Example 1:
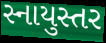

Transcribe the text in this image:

સ્નાયુસ્તર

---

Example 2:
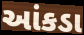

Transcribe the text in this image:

આંકડા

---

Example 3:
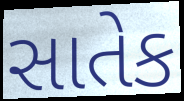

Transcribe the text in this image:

સાતેક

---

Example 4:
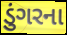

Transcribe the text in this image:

ડુંગરના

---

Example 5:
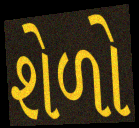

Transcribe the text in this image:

શેળો